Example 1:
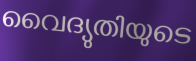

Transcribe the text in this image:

വൈദ്യുതിയുടെ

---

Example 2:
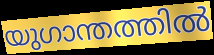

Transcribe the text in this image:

യുഗാന്തത്തിൽ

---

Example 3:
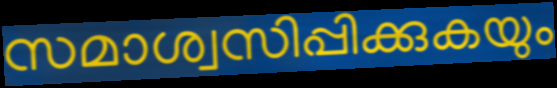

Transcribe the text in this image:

സമാശ്വസിപ്പിക്കുകയും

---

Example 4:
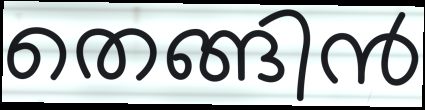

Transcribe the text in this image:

തെങ്ങിൻ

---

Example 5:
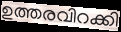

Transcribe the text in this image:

ഉത്തരവിറക്കി